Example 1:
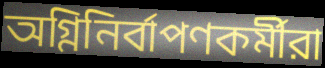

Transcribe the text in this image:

অগ্নিনির্বাপণকর্মীরা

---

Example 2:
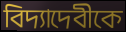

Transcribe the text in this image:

বিদ্যাদেবীকে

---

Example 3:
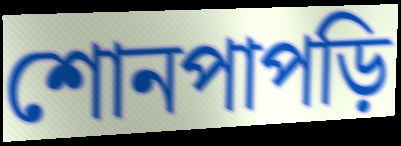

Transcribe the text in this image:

শোনপাপড়ি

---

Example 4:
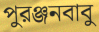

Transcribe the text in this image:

পুরঞ্জনবাবু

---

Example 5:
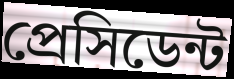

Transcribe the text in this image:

প্রেসিডেন্ট